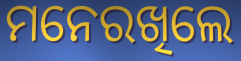
ମନେରଖିଲେ